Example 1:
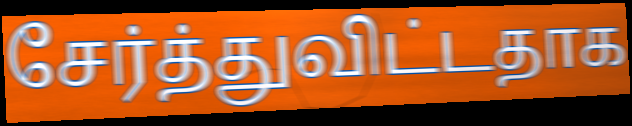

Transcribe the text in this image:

சேர்த்துவிட்டதாக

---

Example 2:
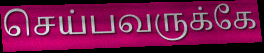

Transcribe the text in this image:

செய்பவருக்கே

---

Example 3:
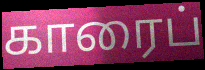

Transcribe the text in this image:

காரைப்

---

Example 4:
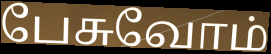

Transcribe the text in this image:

பேசுவோம்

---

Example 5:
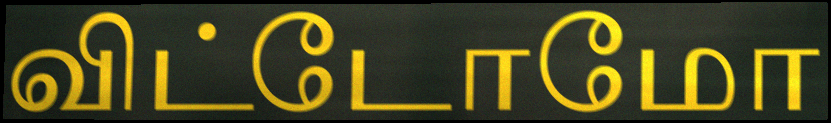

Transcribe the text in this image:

விட்டோமோ